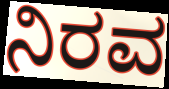
ನಿರವ